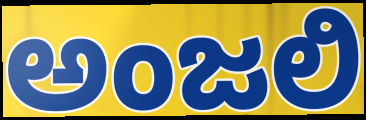
ಅಂಜಲಿ